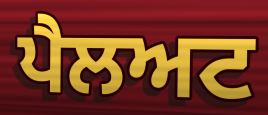
ਪੈਲਅਟ